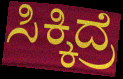
ಸಿಕ್ಕಿದ್ರೆ